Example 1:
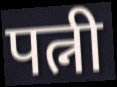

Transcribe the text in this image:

पत्नी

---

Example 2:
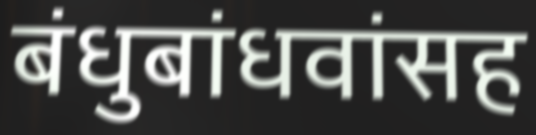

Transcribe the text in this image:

बंधुबांधवांसह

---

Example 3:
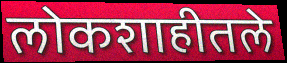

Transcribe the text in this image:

लोकशाहीतले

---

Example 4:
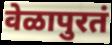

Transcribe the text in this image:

वेळापुरतं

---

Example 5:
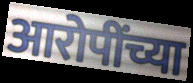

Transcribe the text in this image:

आरोपींच्या